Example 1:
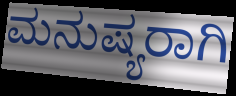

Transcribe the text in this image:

ಮನುಷ್ಯರಾಗಿ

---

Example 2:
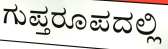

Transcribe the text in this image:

ಗುಪ್ತರೂಪದಲ್ಲಿ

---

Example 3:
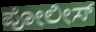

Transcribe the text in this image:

ಪೋಲೀಸ್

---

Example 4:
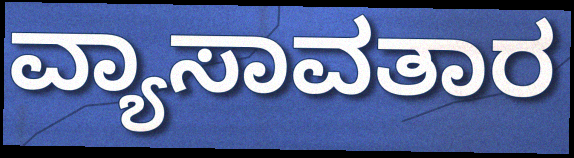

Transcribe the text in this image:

ವ್ಯಾಸಾವತಾರ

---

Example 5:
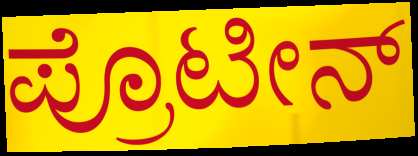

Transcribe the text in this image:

ಪ್ರೊಟೀನ್